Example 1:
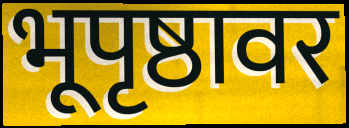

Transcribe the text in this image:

भूपृष्ठावर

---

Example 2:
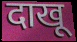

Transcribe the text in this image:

दाखू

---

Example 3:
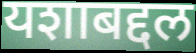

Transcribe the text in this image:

यशाबद्दल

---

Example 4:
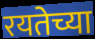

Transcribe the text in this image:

रयतेच्या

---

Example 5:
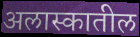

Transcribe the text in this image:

अलास्कातील